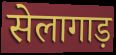
सेलागाड़